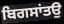
ਬਿਗਸਾਂਤਉ